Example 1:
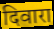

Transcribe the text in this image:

दिवारा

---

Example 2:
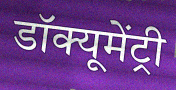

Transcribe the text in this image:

डॉक्‍यूमेंट्री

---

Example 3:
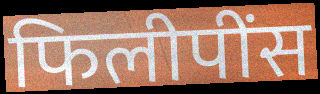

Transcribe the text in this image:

फिलीपींस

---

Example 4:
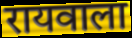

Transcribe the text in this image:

रायवाला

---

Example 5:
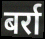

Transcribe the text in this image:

बर्रा